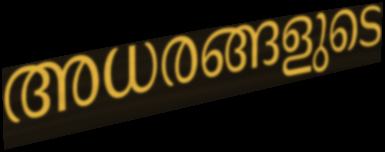
അധരങ്ങളുടെ